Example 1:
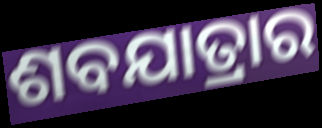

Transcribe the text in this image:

ଶବଯାତ୍ରାର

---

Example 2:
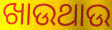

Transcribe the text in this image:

ଖାଉଥାଉ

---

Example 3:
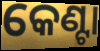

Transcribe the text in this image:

କେଣ୍ଟା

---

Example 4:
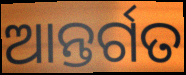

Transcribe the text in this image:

ଆନ୍ତର୍ଗତ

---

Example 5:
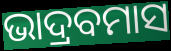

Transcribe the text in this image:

ଭାଦ୍ରବମାସ